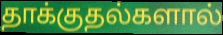
தாக்குதல்களால்